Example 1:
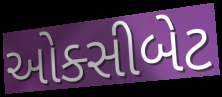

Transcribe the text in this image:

ઓક્સીબેટ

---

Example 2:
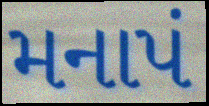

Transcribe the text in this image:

મનાપં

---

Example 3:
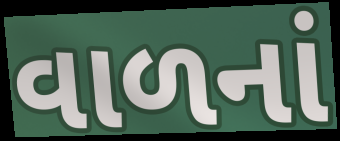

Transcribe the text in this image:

વાળનાં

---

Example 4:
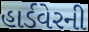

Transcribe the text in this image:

હાર્ડવેરની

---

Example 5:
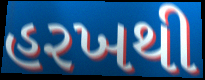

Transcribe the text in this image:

હરખથી